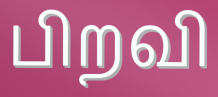
பிறவி